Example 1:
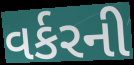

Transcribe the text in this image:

વર્કરની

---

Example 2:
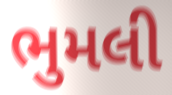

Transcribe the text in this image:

ભુમલી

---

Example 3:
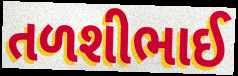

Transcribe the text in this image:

તળશીભાઈ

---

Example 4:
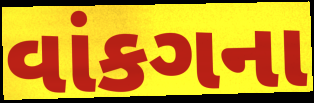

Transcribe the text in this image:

વાંકગના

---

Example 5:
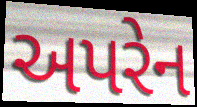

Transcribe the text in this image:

અપરેન